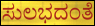
ಸುಲಭದಂತೆ